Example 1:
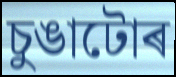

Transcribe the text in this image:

চুঙাটোৰ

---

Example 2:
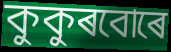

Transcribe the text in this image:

কুকুৰবোৰে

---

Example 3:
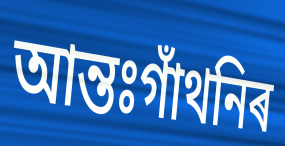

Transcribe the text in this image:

আন্তঃগাঁথনিৰ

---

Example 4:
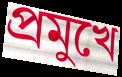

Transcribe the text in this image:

প্ৰমুখে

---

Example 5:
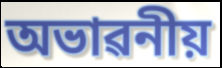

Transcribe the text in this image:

অভাৱনীয়